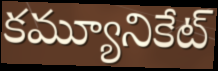
కమ్యూనికేట్